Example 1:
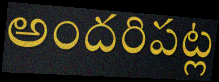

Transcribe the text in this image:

అందరిపట్ల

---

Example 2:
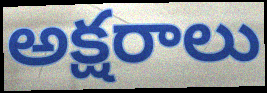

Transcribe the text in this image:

అక్షరాలు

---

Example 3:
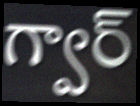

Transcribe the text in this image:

గ్వార్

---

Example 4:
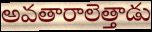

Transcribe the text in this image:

అవతారాలెత్తాడు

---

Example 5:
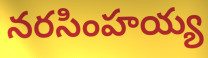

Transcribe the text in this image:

నరసింహయ్య